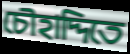
চৌহাদ্দিতে